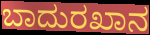
ಬಾದುರಖಾನ